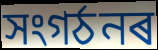
সংগঠনৰ